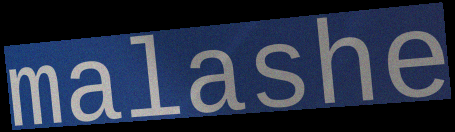
malashe